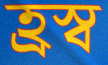
হ্রস্ব